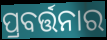
ପ୍ରବର୍ତ୍ତନାର